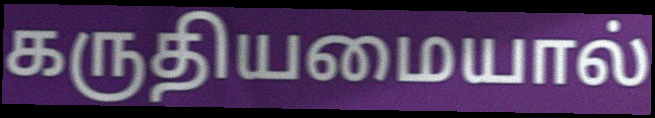
கருதியமையால்